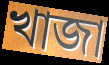
খাজা